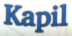
Kapil